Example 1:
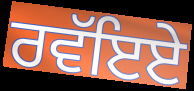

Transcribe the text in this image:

ਰਵੱਇਏ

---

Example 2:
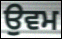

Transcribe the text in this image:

ਉਵਮ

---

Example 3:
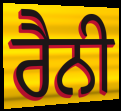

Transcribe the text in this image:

ਰੈਨੀ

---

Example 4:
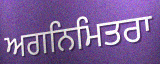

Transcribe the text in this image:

ਅਗਨਿਮਿਤਰਾ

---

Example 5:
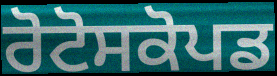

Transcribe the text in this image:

ਰੋਟੋਸਕੋਪਡ